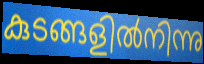
കുടങ്ങളിൽനിന്നു